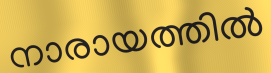
നാരായത്തിൽ